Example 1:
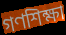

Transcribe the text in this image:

গণশিক্ষা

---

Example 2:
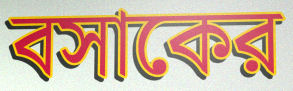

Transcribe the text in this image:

বসাকের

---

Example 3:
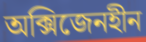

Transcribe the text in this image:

অক্সিজেনহীন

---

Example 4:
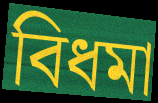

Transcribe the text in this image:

বিধমা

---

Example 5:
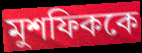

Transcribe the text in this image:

মুশফিককে